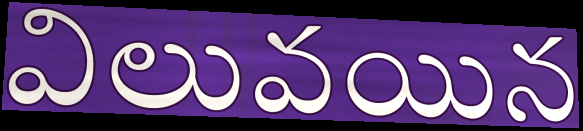
విలువయిన